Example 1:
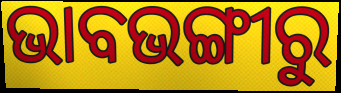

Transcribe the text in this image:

ଭାବଭଙ୍ଗୀରୁ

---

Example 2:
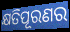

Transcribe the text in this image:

କ୍ଷତିପୂରଣର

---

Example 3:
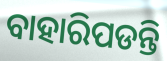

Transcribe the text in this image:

ବାହାରିପଡନ୍ତି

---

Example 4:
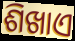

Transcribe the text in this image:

ଶିଖାଏ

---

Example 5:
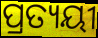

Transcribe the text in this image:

ପ୍ରତ୍ୟୟୀ